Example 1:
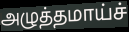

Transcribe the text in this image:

அழுத்தமாய்ச்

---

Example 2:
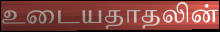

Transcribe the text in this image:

உடையதாதலின்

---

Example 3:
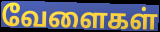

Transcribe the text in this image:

வேளைகள்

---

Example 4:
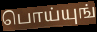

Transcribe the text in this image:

பொய்யுங்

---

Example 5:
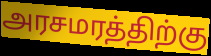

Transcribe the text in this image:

அரசமரத்திற்கு